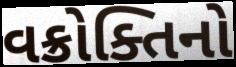
વક્રોક્તિનો